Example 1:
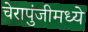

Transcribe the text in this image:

चेरापुंजीमध्ये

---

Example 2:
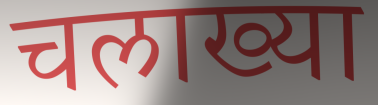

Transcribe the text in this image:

चलाख्या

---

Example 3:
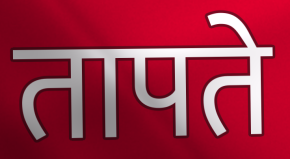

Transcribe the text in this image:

तापते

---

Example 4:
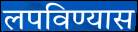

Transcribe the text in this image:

लपविण्यास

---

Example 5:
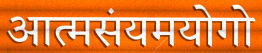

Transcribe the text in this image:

आत्मसंयमयोगो